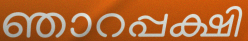
ഞാറപ്പക്ഷി